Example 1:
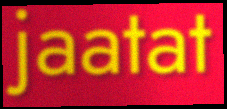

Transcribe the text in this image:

jaatat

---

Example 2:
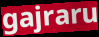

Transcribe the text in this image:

gajraru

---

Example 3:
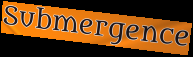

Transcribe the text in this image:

Submergence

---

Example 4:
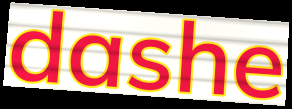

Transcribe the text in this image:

dashe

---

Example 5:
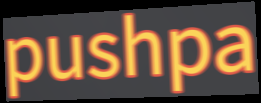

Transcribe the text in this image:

pushpa